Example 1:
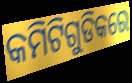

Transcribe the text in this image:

କମିଟିଗୁଡିକରେ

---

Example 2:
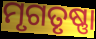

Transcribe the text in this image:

ମୃଗତୃଷ୍ଣା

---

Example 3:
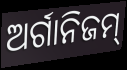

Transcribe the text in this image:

ଅର୍ଗାନିଜମ୍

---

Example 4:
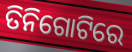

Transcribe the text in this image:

ତିନିଗୋଟିରେ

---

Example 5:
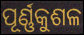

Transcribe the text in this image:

ପୂର୍ଣ୍ଣକୁଶଳ